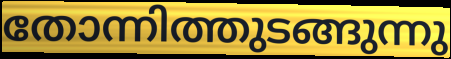
തോന്നിത്തുടങ്ങുന്നു